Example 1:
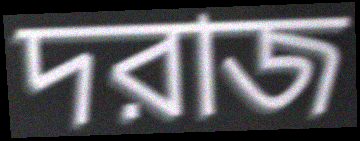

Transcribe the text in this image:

দরাজ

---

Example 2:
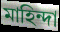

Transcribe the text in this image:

মাহিন্দা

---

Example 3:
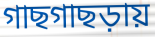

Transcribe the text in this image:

গাছগাছড়ায়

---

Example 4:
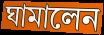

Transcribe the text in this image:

ঘামালেন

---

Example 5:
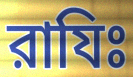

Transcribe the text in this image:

রাযিঃ